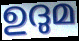
ഉദുമ